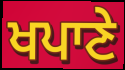
ਖਪਾਣੇ